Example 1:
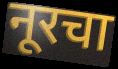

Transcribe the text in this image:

नूरचा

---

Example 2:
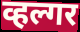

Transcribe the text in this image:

व्हल्गर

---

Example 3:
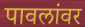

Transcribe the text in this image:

पावलांवर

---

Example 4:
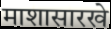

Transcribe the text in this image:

माशासारखे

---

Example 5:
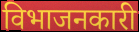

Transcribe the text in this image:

विभाजनकारी